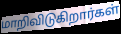
மாறிவிடுகிறார்கள்